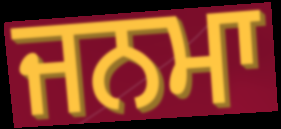
ਜਨਮਾ